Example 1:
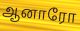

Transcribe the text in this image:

ஆனாரோ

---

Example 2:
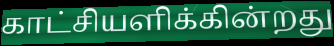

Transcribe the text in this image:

காட்சியளிக்கின்றது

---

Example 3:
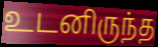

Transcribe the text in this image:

உடனிருந்த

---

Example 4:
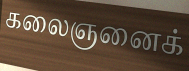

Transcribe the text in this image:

கலைஞனைக்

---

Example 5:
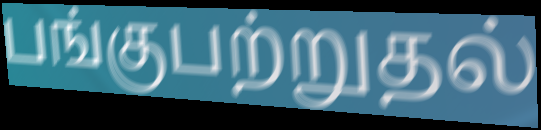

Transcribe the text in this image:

பங்குபற்றுதல்